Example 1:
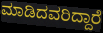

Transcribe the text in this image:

ಮಾಡಿದವರಿದ್ದಾರೆ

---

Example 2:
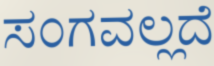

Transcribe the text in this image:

ಸಂಗವಲ್ಲದೆ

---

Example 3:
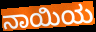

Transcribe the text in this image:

ನಾಯಿಯ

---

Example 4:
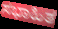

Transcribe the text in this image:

ಸಭಾಹಿತ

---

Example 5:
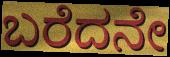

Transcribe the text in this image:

ಬರೆದನೇ